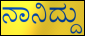
ನಾನಿದ್ದು